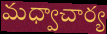
మధ్వాచార్య